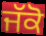
ਜੱਕੋ